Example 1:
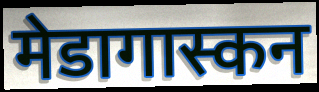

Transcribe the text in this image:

मेडागास्कन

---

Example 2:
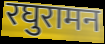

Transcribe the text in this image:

रघुरामन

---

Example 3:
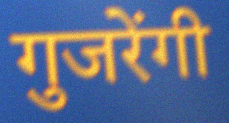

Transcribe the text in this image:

गुजरेंगी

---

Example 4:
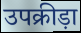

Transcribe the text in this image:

उपक्रीड़ा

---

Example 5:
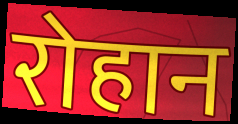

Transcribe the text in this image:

रोहान